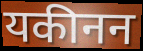
यकीनन